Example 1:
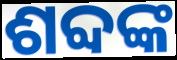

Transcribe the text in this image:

ଶବ୍ଦଙ୍କ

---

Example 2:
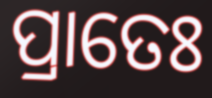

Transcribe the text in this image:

ପ୍ରାତେଃ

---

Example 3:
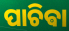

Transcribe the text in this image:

ପାଚିଵା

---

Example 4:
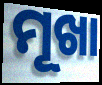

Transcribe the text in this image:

ମୂଖା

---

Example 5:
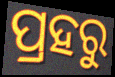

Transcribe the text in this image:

ପ୍ରହରୁ